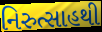
નિરુત્સાહથી